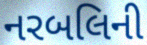
નરબલિની